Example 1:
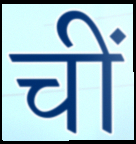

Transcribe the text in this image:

चीं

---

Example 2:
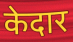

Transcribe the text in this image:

केदार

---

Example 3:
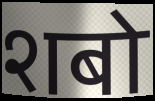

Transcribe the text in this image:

शबो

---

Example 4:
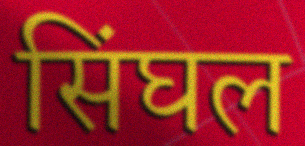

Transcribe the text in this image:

सिंघल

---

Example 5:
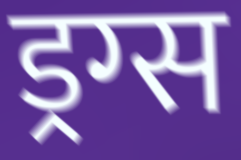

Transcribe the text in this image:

ड्रग्‍स